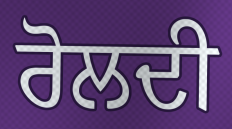
ਰੋਲਦੀ